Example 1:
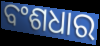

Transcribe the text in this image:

ବଂଶଧାର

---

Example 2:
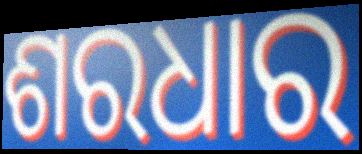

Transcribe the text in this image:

ଶରଧାର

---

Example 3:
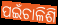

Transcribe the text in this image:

ପଇଁଚାଳିଶି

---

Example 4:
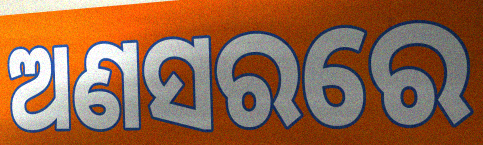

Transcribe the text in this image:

ଅଣସରରେ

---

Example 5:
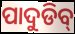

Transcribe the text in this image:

ପାଦୁଡିବ୍